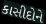
કાસીદોને